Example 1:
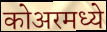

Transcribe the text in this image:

कोअरमध्ये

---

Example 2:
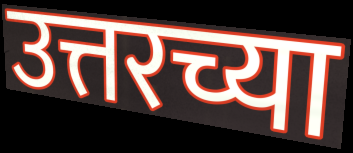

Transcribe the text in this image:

उत्तरच्या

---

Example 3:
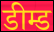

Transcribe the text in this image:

डीम्ड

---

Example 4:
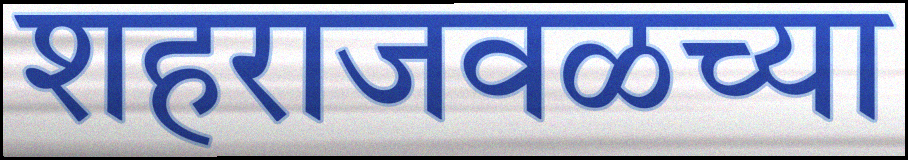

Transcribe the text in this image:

शहराजवळच्या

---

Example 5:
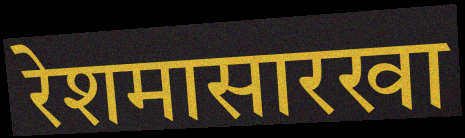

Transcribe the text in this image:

रेशमासारखा